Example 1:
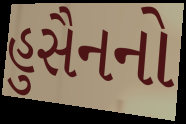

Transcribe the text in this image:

હુસૈનનો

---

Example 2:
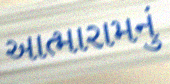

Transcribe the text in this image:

આત્મારામનું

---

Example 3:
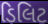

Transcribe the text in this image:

ડિલિટ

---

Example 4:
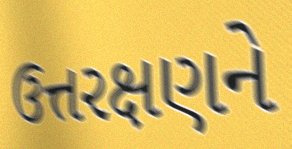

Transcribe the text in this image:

ઉત્તરક્ષણને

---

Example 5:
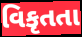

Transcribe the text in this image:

વિકૃતતા